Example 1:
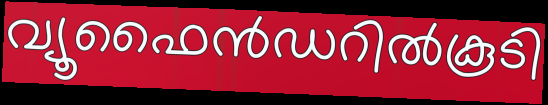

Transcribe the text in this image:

വ്യൂഫൈൻഡറിൽകൂടി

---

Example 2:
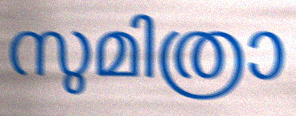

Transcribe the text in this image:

സുമിത്രാ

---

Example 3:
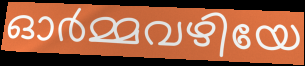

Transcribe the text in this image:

ഓർമ്മവഴിയേ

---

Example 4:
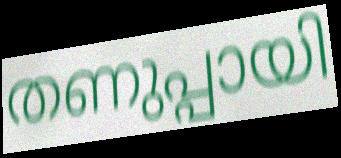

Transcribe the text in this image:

തണുപ്പായി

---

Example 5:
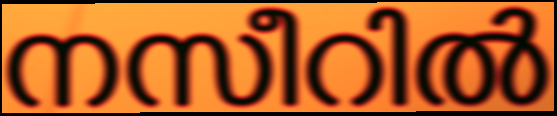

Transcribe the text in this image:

നസീറിൽ